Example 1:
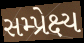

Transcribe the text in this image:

સમ્પ્રેક્ષ્ય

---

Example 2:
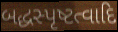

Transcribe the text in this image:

બદ્ધસ્પૃષ્ટત્વાદિ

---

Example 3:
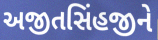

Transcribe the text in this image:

અજીતસિંહજીને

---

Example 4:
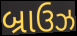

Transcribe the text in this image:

બ્રાઉઝ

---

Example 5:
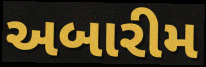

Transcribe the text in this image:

અબારીમ